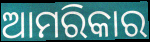
ଆମରିକାର